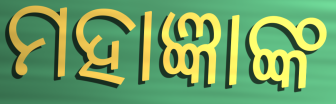
ମହାଜ୍ଞାଙ୍କ